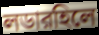
লডারহিলে